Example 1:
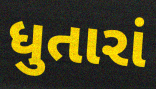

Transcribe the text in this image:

ધુતારાં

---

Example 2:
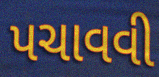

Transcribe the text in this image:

પચાવવી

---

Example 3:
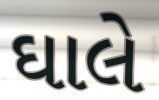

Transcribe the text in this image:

ઘાલે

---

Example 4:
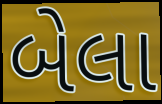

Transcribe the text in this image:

બેલા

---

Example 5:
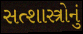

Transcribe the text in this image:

સત્શાસ્ત્રોનું